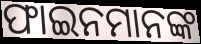
ଫାଇନମାନଙ୍କ